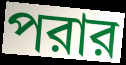
পরার